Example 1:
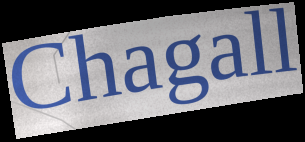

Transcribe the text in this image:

Chagall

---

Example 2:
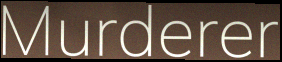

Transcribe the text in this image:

Murderer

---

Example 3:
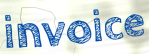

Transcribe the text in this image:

invoice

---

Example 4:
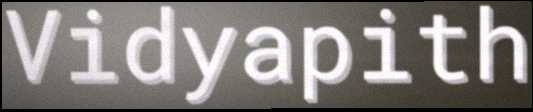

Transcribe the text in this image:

Vidyapith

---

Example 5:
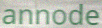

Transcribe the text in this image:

annode